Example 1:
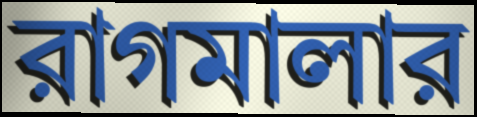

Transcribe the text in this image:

রাগমালার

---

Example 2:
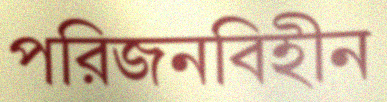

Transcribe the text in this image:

পরিজনবিহীন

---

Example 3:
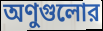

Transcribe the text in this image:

অণুগুলোর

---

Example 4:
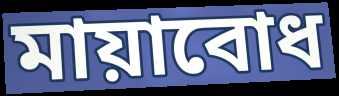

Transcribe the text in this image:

মায়াবোধ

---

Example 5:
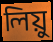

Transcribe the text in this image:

লিয়ু